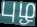
புழ